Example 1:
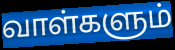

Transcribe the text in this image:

வாள்களும்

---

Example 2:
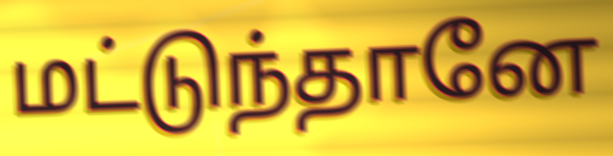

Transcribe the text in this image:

மட்டுந்தானே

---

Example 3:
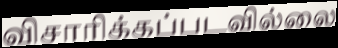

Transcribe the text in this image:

விசாரிக்கப்படவில்லை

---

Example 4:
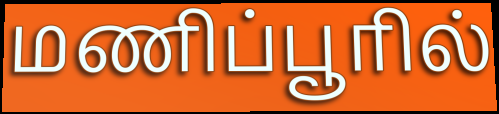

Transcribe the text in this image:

மணிப்பூரில்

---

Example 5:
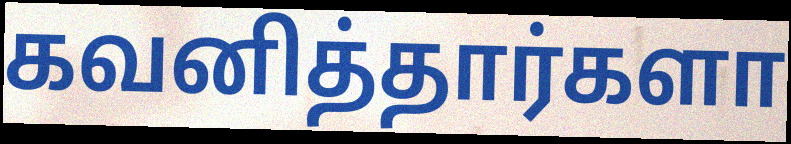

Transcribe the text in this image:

கவனித்தார்களா